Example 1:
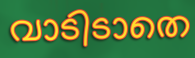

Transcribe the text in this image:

വാടിടാതെ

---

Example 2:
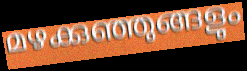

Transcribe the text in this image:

മഴക്കുഞ്ഞുങ്ങളും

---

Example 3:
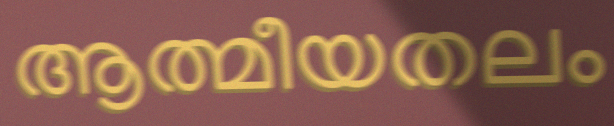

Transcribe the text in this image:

ആത്മീയതലം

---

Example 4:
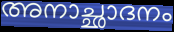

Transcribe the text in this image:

അനാച്ഛാദനം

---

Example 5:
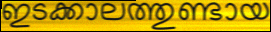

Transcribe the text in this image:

ഇടക്കാലത്തുണ്ടായ